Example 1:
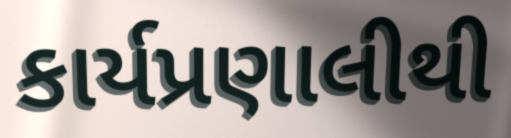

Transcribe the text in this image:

કાર્યપ્રણાલીથી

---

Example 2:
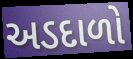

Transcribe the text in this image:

અડદાળો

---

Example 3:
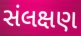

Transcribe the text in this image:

સંલક્ષણ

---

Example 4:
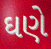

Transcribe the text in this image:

ઘણે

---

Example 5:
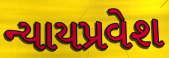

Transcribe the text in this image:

ન્યાયપ્રવેશ